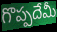
గొప్పదేమీ